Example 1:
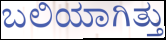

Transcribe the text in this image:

ಬಲಿಯಾಗಿತ್ತು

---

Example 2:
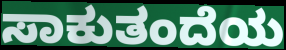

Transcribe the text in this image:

ಸಾಕುತಂದೆಯ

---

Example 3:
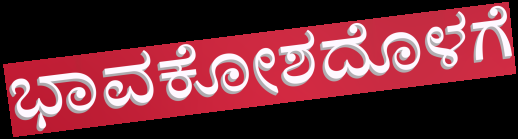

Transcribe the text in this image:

ಭಾವಕೋಶದೊಳಗೆ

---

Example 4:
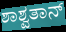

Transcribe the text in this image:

ಶಾಶ್ವತಾನ್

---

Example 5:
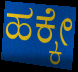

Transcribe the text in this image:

ಹಕ್ಕೇ